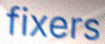
fixers